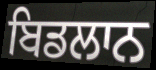
ਬਿਡਲਾਨ